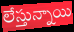
లేస్తున్నాయి